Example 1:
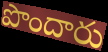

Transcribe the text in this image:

పొందారు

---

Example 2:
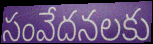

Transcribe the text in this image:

సంవేదనలకు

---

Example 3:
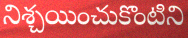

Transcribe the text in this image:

నిశ్చయించుకొంటిని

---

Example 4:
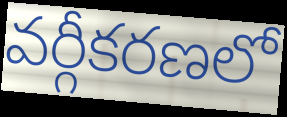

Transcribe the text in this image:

వర్గీకరణలో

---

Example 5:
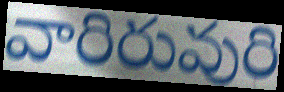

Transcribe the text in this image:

వారిరువురి